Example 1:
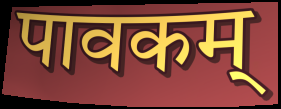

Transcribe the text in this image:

पावकम्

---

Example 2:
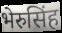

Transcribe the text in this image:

भेरुसिंह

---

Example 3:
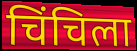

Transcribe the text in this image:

चिंचिला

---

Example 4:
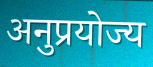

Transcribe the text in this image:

अनुप्रयोज्य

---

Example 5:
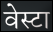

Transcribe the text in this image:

वेस्टा